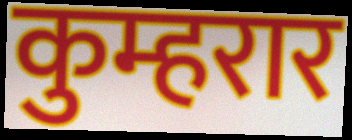
कुम्हरार